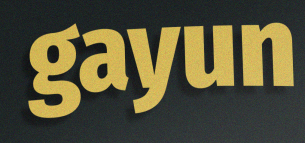
gayun